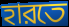
হারতে